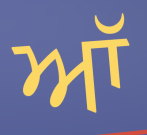
ਆੱ